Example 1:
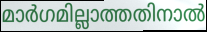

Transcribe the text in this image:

മാർഗമില്ലാത്തതിനാൽ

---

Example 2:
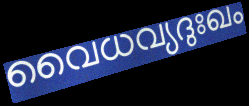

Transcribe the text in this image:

വൈധവ്യദുഃഖം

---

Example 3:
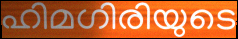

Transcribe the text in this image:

ഹിമഗിരിയുടെ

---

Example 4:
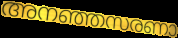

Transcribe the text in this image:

അനഞ്ഞസരണാ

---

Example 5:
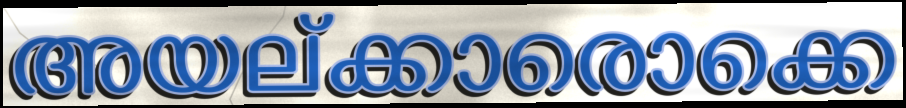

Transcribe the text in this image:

അയല്ക്കാരൊക്കെ